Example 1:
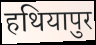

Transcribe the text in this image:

हथियापुर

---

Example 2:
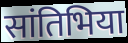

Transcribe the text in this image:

सांतिभिया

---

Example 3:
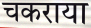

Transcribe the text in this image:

चकराया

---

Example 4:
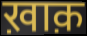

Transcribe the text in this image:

ख़ाक़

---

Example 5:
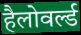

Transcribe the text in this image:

हैलोवर्ल्ड